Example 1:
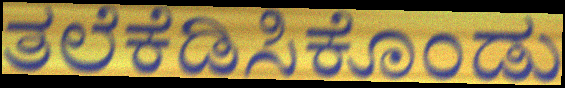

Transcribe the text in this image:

ತಲೆಕೆಡಿಸಿಕೊಂಡು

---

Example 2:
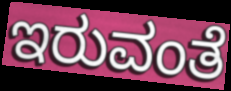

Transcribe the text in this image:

ಇರುವಂತೆ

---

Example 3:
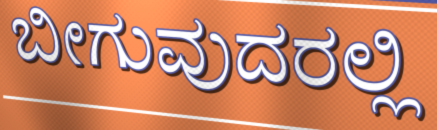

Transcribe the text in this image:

ಬೀಗುವುದರಲ್ಲಿ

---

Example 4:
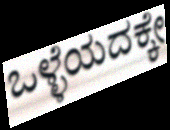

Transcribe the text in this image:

ಒಳ್ಳೆಯದಕ್ಕೇ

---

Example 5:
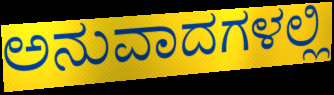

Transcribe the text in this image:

ಅನುವಾದಗಳಲ್ಲಿ